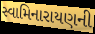
સ્વામિનારાયણની